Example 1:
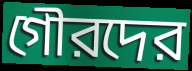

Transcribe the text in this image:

গৌরদের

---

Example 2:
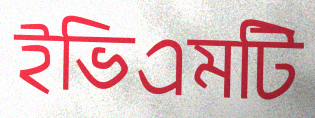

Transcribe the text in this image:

ইভিএমটি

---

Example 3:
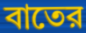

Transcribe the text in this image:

বাতের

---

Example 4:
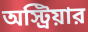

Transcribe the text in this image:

অস্ট্রিয়ার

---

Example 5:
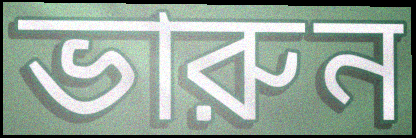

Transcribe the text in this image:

ভারুন